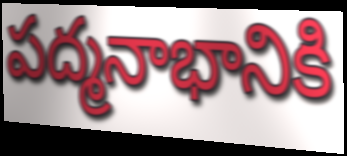
పద్మనాభానికి